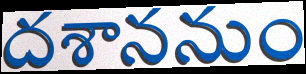
దశాననుం